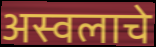
अस्वलाचे